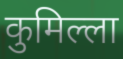
कुमिल्ला